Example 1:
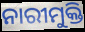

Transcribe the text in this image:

ନାରୀମୁକ୍ତି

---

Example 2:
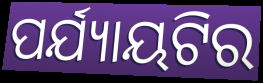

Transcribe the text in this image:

ପର୍ଯ୍ୟାୟଟିର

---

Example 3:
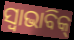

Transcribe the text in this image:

ସ୍ଵାଭାବିକ୍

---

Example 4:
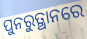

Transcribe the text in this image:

ପୁନରୁତ୍ଥାନରେ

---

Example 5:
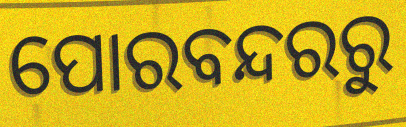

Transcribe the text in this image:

ପୋରବନ୍ଦରରୁ